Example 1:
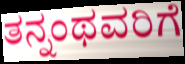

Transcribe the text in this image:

ತನ್ನಂಥವರಿಗೆ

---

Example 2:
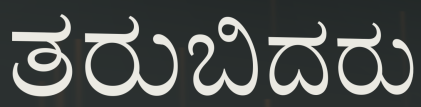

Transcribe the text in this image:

ತರುಬಿದರು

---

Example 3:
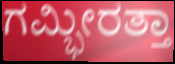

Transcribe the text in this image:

ಗಮ್ಭೀರತ್ತಾ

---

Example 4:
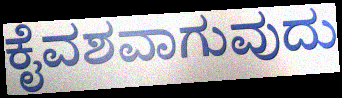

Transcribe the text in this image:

ಕೈವಶವಾಗುವುದು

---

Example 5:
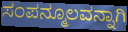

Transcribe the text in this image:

ಸಂಪನ್ಮೂಲವನ್ನಾಗಿ